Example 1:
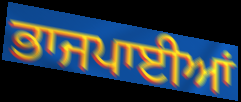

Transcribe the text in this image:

ਭਾਜਪਾਈਆਂ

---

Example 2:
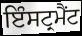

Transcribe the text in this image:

ਇੰਸਟ੍ਰਮੈਂਟ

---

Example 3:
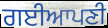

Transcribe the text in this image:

ਗਈਆਪਣੀ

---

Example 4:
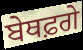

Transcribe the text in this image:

ਬੇਥਫ਼ਗੇ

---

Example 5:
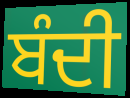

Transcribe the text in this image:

ਬੰਦੀ